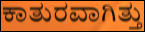
ಕಾತುರವಾಗಿತ್ತು